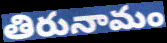
తిరునామం